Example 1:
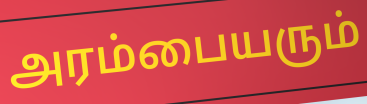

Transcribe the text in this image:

அரம்பையரும்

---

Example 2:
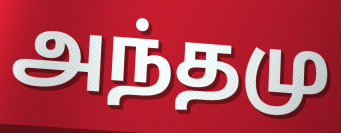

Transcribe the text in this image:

அந்தமு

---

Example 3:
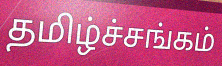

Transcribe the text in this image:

தமிழ்ச்சங்கம்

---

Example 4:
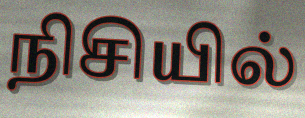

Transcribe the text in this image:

நிசியில்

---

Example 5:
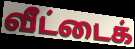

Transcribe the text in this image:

வீட்டைக்